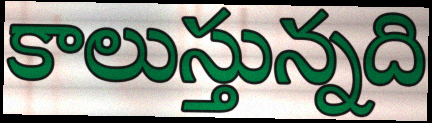
కాలుస్తున్నది